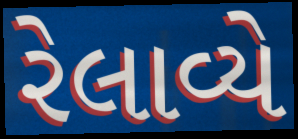
રેલાવ્યે